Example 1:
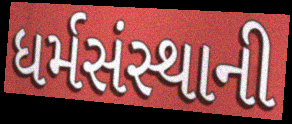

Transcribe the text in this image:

ધર્મસંસ્થાની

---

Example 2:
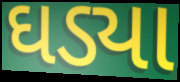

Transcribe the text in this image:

ઘડ્યા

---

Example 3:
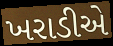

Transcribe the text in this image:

ખરાડીએ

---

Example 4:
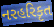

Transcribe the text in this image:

નરહરિકૃત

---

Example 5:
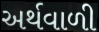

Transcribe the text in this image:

અર્થવાળી